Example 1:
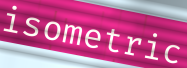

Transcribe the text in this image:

isometric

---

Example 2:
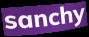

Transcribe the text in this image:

sanchy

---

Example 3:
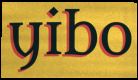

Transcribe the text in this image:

yibo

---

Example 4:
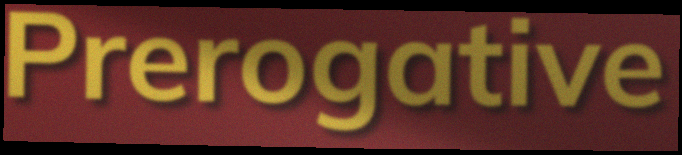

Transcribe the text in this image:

Prerogative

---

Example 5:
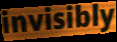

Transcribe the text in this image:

invisibly